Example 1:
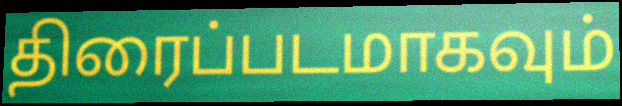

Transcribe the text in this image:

திரைப்படமாகவும்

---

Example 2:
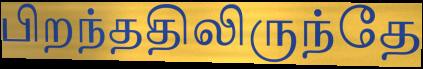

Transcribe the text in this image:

பிறந்ததிலிருந்தே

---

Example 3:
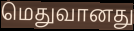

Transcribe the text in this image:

மெதுவானது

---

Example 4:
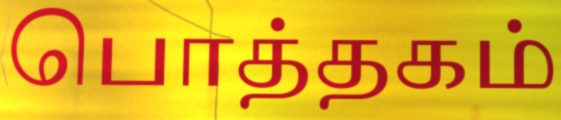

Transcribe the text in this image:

பொத்தகம்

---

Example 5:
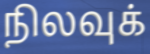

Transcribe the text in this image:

நிலவுக்